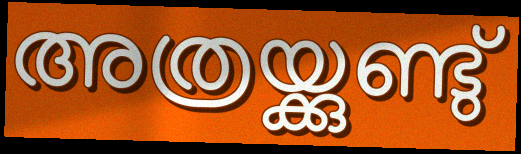
അത്രയ്ക്കുണ്ടു്